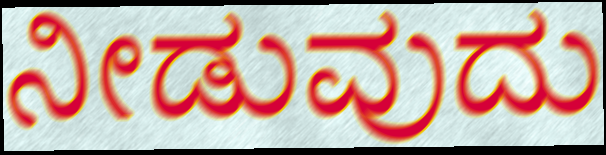
ನೀಡುವುದು